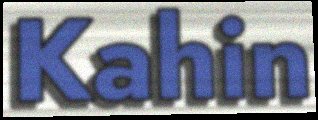
Kahin